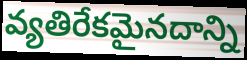
వ్యతిరేకమైనదాన్ని